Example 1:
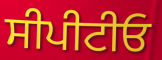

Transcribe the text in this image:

ਸੀਪੀਟੀਓ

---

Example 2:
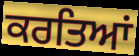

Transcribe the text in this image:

ਕਰਤਿਆਂ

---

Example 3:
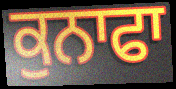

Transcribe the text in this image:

ਕੁਨਾਫਾ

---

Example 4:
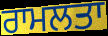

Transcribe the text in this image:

ਰਾਮਲਤਾ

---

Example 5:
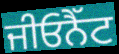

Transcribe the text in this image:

ਜੀਓਨੈੱਟ